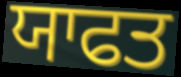
ਯਾਫਤ